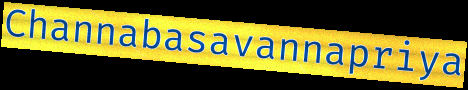
Channabasavannapriya